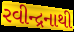
રવીન્દ્રનાથી